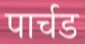
पार्चड